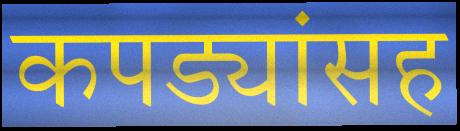
कपड्यांसह